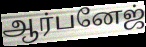
ஆர்பனேஜ்